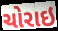
ચોરાઇ